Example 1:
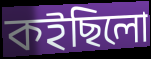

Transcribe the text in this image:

কইছিলো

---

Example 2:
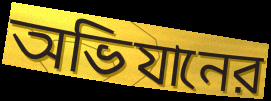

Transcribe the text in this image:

অভিযানের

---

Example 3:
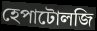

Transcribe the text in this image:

হেপাটোলজি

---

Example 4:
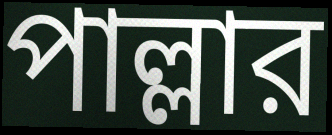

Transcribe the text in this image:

পাল্লার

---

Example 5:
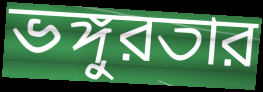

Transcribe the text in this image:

ভঙ্গুরতার